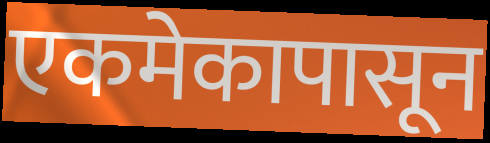
एकमेकापासून